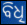
ବିଧି